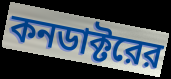
কনডাক্টরের